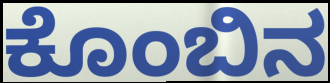
ಕೊಂಬಿನ